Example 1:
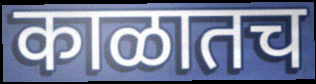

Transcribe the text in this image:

काळातच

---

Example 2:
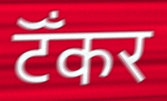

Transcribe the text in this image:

टॅँकर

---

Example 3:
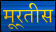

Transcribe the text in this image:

मूर्तीस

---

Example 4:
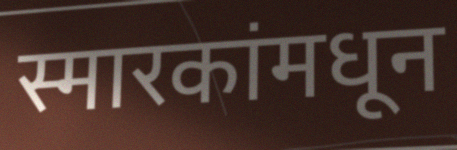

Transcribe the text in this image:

स्मारकांमधून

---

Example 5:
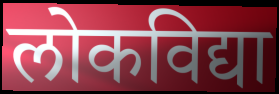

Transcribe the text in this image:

लोकविद्या